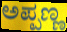
ಅಪ್ಪಣ್ಣ